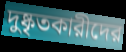
দুষ্কৃতকারীদের